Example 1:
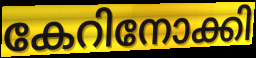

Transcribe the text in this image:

കേറിനോക്കി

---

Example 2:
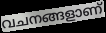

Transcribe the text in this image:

വചനങ്ങളാണ്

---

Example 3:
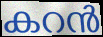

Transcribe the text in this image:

കറൻ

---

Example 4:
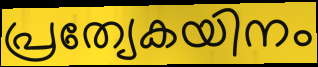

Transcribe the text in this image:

പ്രത്യേകയിനം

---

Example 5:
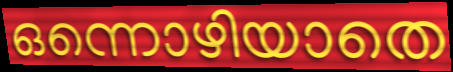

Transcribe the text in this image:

ഒന്നൊഴിയാതെ